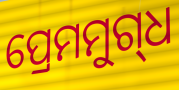
ପ୍ରେମମୁଗ୍‌ଧ